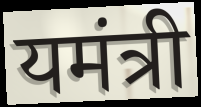
यमंत्री